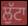
ਲੁੱਟਾ